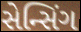
સેન્સિંગ